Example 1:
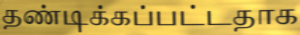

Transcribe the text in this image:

தண்டிக்கப்பட்டதாக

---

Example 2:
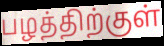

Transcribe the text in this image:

பழத்திற்குள்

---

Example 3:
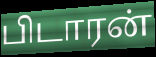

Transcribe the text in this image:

பிடாரன்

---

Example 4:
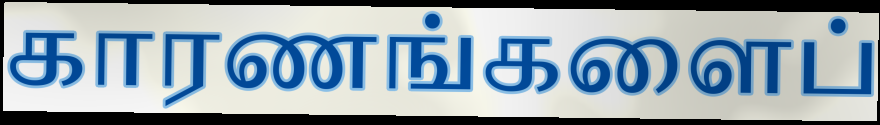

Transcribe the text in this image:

காரணங்களைப்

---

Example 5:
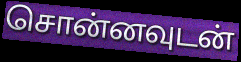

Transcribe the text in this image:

சொன்னவுடன்